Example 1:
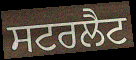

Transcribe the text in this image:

ਸਟਰਲੈਟ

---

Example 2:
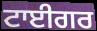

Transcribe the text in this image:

ਟਾਈਗਰ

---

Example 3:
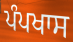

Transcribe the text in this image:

ਪੰਪਖਾਸ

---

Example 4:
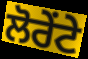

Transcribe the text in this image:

ਲੋਰੇਂਟੇ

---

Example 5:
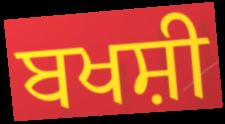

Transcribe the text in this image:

ਬਖਸ਼ੀ